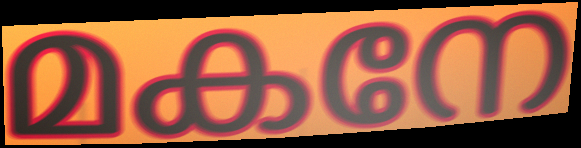
മകനേ